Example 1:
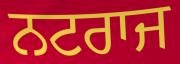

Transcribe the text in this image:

ਨਟਰਾਜ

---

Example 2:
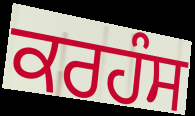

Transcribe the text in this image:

ਕਰਹੰਸ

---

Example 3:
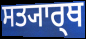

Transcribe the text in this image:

ਸਤ੍ਯਾਰ੍ਥ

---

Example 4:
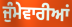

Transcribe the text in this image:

ਜੁੰਮੇਵਾਰੀਆਂ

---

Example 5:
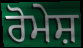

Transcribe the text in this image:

ਰੋਮੇਸ਼